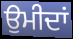
ਉਮੀਦਾਂ